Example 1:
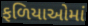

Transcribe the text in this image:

ફળિયાઓમાં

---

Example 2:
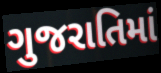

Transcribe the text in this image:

ગુજરાતિમાં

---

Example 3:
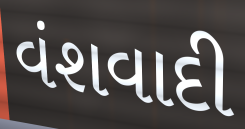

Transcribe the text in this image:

વંશવાદી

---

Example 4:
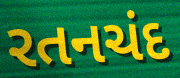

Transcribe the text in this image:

રતનચંદ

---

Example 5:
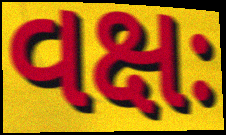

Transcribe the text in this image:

વક્ષઃ